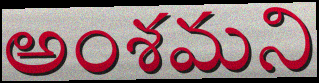
అంశమని